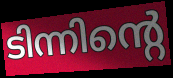
ടിന്നിന്റെ